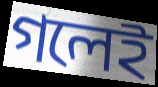
গলেই